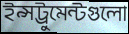
ইন্সট্রুমেন্টগুলো